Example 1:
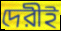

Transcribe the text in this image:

দেরীই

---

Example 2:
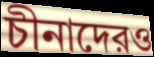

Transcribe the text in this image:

চীনাদেরও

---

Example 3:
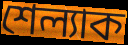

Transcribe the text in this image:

শেল্যাক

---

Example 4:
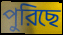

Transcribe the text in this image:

পুরিছে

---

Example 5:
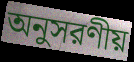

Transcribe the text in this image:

অনুসরণীয়